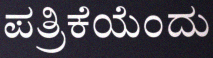
ಪತ್ರಿಕೆಯೆಂದು